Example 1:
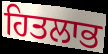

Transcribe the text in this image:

ਹਿਤਲਾਭ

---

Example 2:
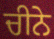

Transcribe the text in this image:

ਚੀਨੇ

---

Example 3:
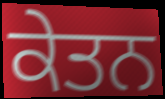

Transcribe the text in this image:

ਕੇਤਨ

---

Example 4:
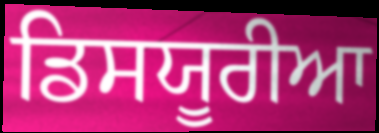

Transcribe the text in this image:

ਡਿਸਯੂਰੀਆ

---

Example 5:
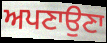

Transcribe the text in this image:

ਅਪਣਾਉਣਾ